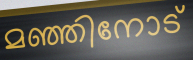
മഞ്ഞിനോട്